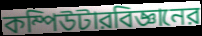
কম্পিউটারবিজ্ঞানের